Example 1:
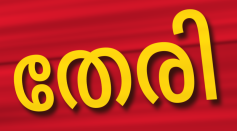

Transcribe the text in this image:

തേരി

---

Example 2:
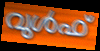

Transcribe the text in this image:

വുൾഫ്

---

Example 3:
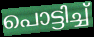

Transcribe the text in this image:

പൊട്ടിച്ച്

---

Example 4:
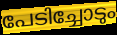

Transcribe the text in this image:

പേടിച്ചോടും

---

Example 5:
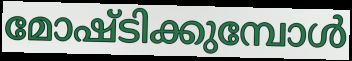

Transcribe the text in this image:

മോഷ്ടിക്കുമ്പോൾ